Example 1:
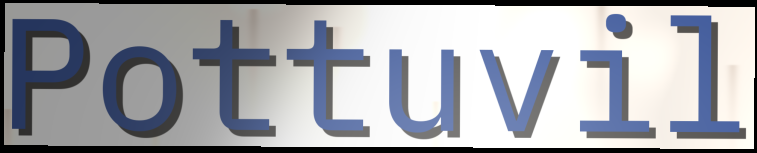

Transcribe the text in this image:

Pottuvil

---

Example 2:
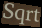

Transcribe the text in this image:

Sqrt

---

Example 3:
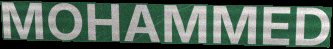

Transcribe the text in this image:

MOHAMMED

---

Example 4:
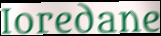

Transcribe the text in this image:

Ioredane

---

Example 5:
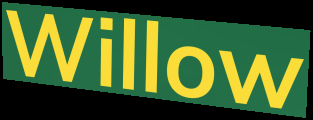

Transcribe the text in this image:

Willow